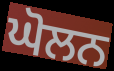
ਘੋਲਨ